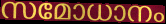
സമോധാനം